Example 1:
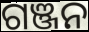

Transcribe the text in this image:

ଗଞ୍ଜନ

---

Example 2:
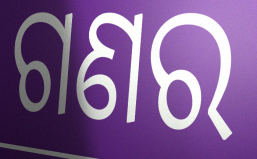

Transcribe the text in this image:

ଗଣର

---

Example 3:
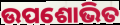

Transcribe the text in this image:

ଉପଶୋଭିତ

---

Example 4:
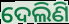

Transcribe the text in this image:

ଦେଲିଣି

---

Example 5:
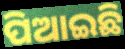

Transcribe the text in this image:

ପିଆଇଛି